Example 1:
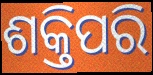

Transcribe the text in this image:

ଶକ୍ତିପରି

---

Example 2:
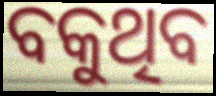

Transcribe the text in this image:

ବକୁଥିବ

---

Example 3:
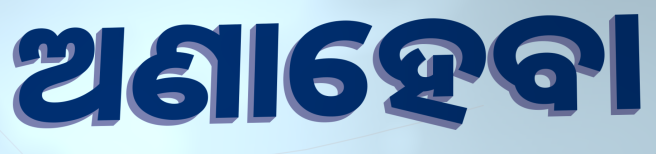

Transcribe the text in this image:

ଅଣାହେବା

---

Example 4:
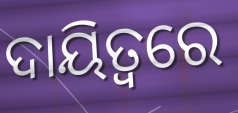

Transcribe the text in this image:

ଦାୟିତ୍ବରେ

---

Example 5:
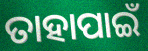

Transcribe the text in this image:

ତାହାପାଇଁ